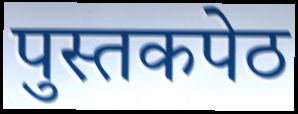
पुस्तकपेठ